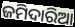
ଜମିଦାରିଆ